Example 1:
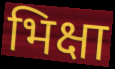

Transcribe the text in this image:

भिक्षा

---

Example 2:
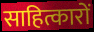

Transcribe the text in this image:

साहित्कारों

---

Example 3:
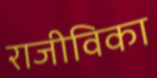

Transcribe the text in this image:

राजीविका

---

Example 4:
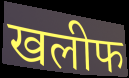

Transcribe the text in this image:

खलीफ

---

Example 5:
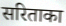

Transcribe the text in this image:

सरिताका